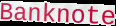
Banknote